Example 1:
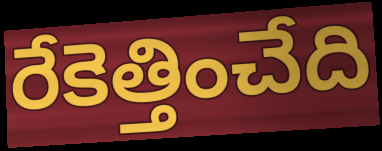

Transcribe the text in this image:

రేకెత్తించేది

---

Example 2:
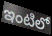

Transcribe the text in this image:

ఇంటిలో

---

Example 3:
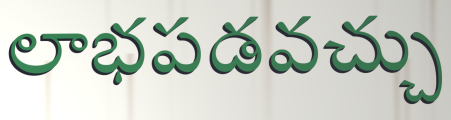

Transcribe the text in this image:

లాభపడవచ్చు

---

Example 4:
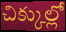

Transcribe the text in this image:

చిక్కుల్లో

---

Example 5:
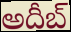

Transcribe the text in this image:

అదీబ్